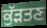
ਕੁੱੜਤਣ